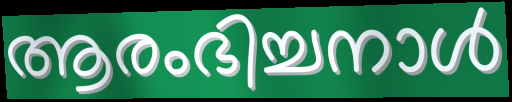
ആരംഭിച്ചനാൾ